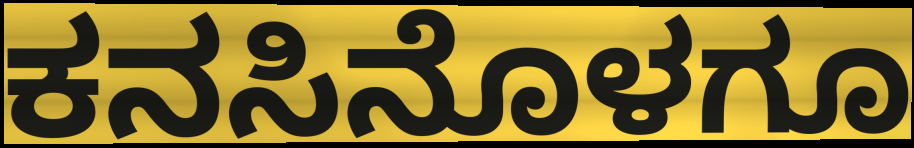
ಕನಸಿನೊಳಗೂ